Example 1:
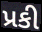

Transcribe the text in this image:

પ્રકી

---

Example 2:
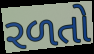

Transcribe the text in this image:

રળતો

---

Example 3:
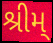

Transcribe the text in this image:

શ્રીમ્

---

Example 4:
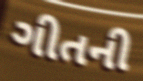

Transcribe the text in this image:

ગીતની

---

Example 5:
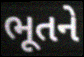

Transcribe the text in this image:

ભૂતને